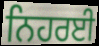
ਨਿਹਰਈ